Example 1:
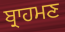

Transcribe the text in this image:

ਬ੍ਰਾਹਮਣ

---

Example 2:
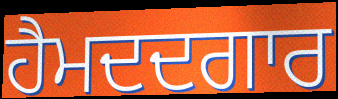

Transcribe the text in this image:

ਹੈਮਦਦਗਾਰ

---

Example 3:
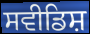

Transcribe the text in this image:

ਸਵੀਡਿਸ਼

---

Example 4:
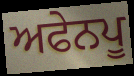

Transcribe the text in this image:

ਅਫੇਨਪੂ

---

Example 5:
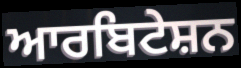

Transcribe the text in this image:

ਆਰਬਿਟੇਸ਼ਨ